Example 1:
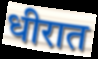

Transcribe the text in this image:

धीरात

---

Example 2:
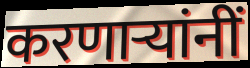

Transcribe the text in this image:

करणार्‍यांनीं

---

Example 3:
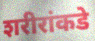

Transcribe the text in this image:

शरीरांकडे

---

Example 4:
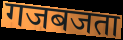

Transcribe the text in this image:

गजबजता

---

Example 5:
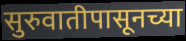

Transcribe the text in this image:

सुरुवातीपासूनच्या